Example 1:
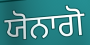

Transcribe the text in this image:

ਯੋਨਾਗੋ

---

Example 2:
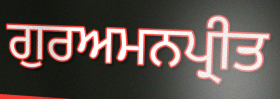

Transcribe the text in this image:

ਗੁਰਅਮਨਪ੍ਰੀਤ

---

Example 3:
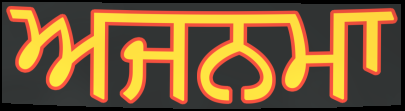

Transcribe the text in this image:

ਅਜਨਮਾ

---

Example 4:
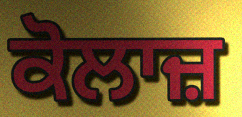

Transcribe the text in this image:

ਕੋਲਾਜ਼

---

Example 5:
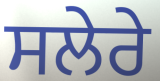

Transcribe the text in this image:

ਸਲੇਰੇ